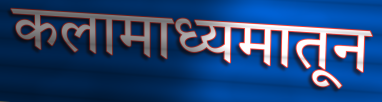
कलामाध्यमातून